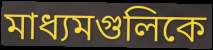
মাধ্যমগুলিকে